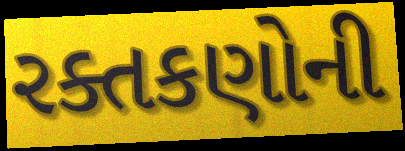
રક્તકણોની